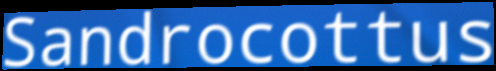
Sandrocottus